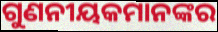
ଗୁଣନୀୟକମାନଙ୍କର